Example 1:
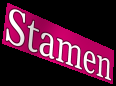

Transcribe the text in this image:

Stamen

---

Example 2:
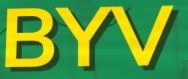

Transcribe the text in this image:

BYV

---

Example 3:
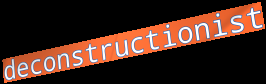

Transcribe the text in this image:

deconstructionist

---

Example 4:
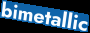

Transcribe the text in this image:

bimetallic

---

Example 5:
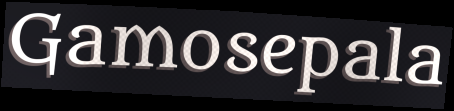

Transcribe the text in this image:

Gamosepala